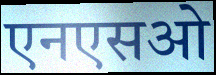
एनएसओ